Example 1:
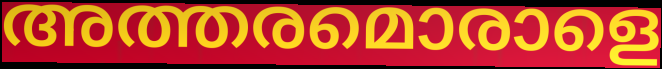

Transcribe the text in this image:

അത്തരമൊരാളെ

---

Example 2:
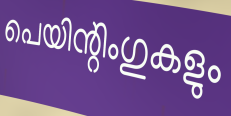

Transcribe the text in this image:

പെയിന്റിംഗുകളും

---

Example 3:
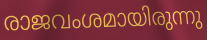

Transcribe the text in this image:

രാജവംശമായിരുന്നു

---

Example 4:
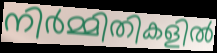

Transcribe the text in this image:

നിർമ്മിതികളിൽ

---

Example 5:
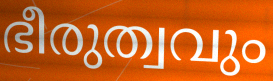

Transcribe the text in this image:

ഭീരുത്വവും